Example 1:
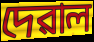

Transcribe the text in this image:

দেৱাল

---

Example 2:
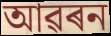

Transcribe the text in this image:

আৱৰন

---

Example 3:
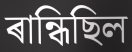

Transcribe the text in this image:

ৰান্ধিছিল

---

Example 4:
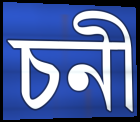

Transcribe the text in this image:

চনী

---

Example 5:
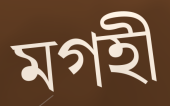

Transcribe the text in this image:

মগহী